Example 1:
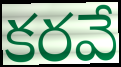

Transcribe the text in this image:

కరవే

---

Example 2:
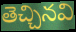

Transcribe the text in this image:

తెచ్చినవి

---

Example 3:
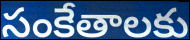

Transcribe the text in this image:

సంకేతాలకు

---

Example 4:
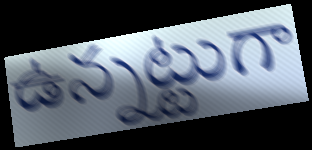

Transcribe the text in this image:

ఉన్నట్టుగా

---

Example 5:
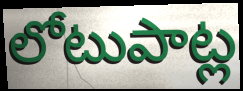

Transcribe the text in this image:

లోటుపాట్ల